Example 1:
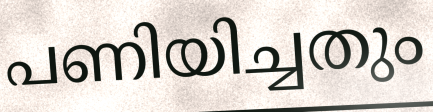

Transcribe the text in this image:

പണിയിച്ചതും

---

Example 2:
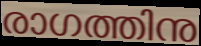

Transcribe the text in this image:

രാഗത്തിനു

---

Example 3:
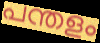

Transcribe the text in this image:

പന്തളം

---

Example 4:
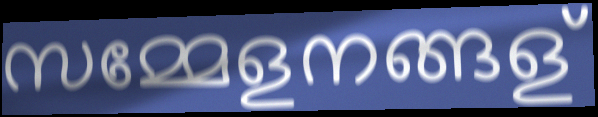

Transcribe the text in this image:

സമ്മേളനങ്ങള്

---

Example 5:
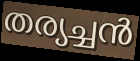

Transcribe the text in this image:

തര്യച്ചൻ